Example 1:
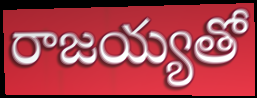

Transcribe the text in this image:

రాజయ్యతో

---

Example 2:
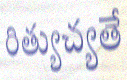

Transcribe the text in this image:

రిత్యుచ్యతే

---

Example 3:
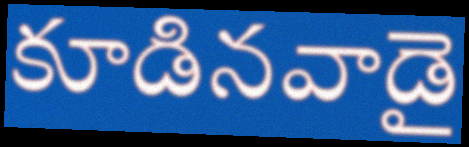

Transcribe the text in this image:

కూడినవాడై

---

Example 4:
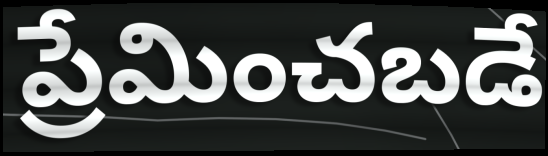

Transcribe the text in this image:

ప్రేమించబడే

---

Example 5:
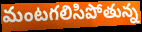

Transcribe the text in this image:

మంటగలిసిపోతున్న